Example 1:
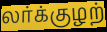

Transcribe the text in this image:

லர்க்குழற்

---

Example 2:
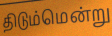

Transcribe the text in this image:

திடும்மென்று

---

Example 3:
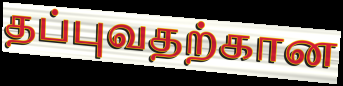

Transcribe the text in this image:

தப்புவதற்கான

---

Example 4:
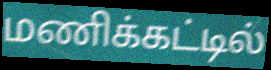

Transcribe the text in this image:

மணிக்கட்டில்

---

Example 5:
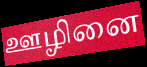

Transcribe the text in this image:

ஊழினை